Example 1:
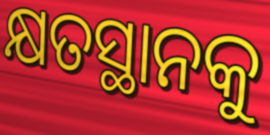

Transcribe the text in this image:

କ୍ଷତସ୍ଥାନକୁ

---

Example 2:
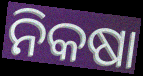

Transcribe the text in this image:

ନିକଷା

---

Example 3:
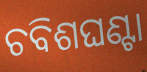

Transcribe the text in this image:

ଚବିଶଘଣ୍ଟା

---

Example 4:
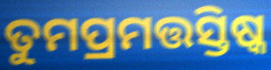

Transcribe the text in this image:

ତୁମପ୍ରମତ୍ତସ୍ତିଷ୍କ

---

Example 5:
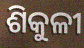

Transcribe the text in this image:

ଶିକୁଳୀ